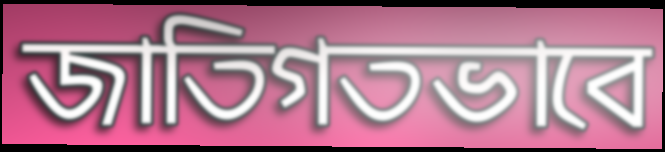
জাতিগতভাবে